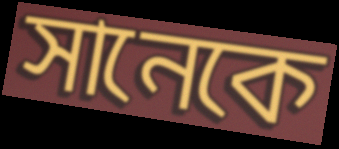
সানেকে